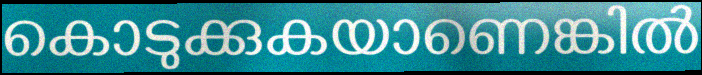
കൊടുക്കുകയാണെങ്കിൽ